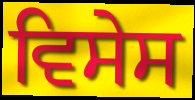
ਵਿਸੇਸ